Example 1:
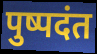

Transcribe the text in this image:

पुष्पदंत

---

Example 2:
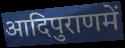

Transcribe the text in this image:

आदिपुराणमें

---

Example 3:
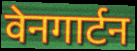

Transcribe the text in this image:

वेनगार्टन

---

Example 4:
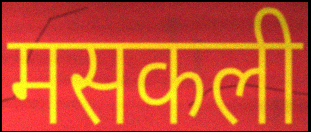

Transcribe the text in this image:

मसकली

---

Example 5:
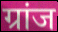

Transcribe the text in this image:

ग्रांज